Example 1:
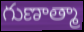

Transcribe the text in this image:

గుణాత్మా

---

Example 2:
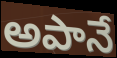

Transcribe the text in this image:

అపానే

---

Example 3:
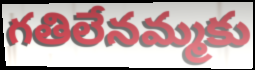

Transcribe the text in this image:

గతిలేనమ్మకు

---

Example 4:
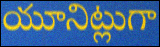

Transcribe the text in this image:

యూనిట్లుగా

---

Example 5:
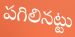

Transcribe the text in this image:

పగిలినట్టు